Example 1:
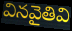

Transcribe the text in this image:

వినవైతివి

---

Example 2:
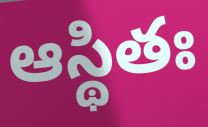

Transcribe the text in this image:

ఆస్థితః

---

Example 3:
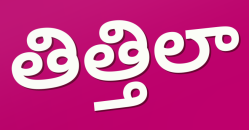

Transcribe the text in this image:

తిత్తిలా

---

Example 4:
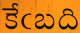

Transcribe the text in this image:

కేఁబది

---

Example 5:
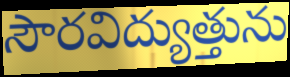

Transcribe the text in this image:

సౌరవిద్యుత్తును